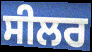
ਸੀਲਰ